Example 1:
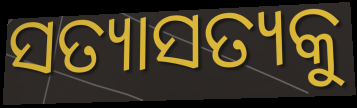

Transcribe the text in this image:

ସତ୍ୟାସତ୍ୟକୁ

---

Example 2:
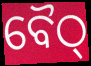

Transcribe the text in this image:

ବୈଠ୍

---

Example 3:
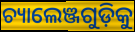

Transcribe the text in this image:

ଚ୍ୟାଲେଞ୍ଜଗୁଡ଼ିକୁ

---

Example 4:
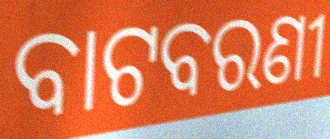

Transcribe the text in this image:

ବାଟବରଣୀ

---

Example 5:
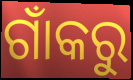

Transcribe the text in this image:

ଗାଁକରୁ